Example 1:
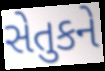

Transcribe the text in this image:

સેતુકને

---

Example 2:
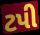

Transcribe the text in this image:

ટપી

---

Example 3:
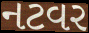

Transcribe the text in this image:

નટવર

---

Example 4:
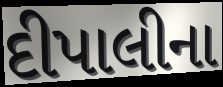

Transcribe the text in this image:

દીપાલીના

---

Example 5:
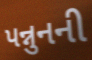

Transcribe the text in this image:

પન્નુનની